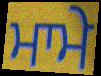
ਮਾਮੇ